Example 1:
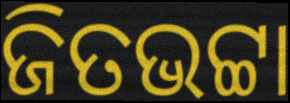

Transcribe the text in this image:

ଜିତଭଟ୍ଟା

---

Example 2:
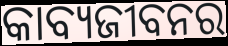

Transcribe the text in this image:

କାବ୍ୟଜୀବନର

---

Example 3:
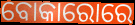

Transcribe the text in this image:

ବୋକାରୋରେ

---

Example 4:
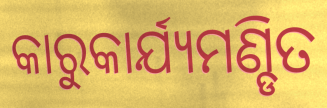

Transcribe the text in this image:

କାରୁକାର୍ଯ୍ୟମଣ୍ଡିତ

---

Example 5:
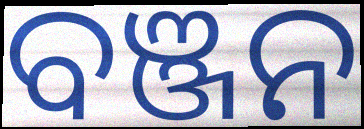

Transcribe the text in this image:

ବଞ୍ଜନ